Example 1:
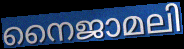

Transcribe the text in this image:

നൈജാമലി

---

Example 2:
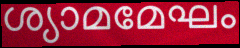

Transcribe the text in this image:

ശ്യാമമേഘം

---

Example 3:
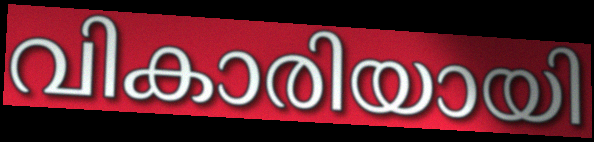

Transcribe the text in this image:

വികാരിയായി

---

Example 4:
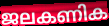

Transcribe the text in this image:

ജലകണിക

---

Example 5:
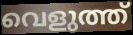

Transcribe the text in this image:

വെളുത്ത്